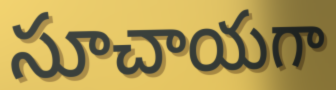
సూచాయగా